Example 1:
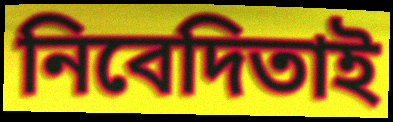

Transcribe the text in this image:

নিবেদিতাই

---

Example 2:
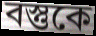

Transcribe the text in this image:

বস্তুকে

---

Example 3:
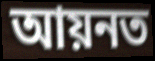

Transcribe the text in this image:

আয়নত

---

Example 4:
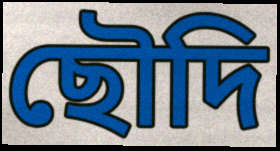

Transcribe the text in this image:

ছৌদি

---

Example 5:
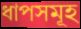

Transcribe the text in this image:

ধাপসমূহ